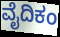
ವೈದಿಕಂ